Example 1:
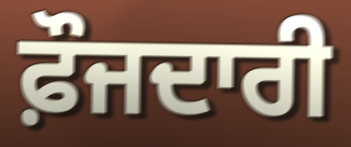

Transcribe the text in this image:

ਫ਼ੌਜਦਾਰੀ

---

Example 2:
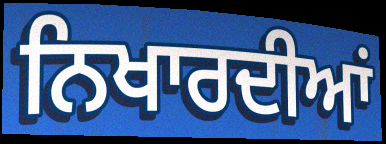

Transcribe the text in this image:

ਨਿਖਾਰਦੀਆਂ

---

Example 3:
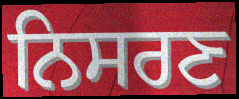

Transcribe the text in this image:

ਨਿਸਰਣ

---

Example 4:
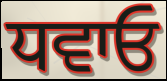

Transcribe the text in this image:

ਧਵਾਓ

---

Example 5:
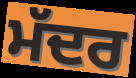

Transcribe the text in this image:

ਮੱਦਰ